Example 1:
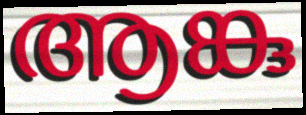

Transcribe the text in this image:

ആങ്കു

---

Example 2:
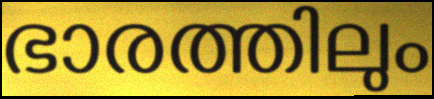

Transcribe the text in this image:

ഭാരത്തിലും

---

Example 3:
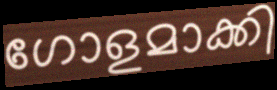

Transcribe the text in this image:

ഗോളമാക്കി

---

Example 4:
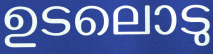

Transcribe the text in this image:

ഉടലൊടു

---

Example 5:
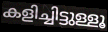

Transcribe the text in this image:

കളിച്ചിട്ടുള്ളൂ